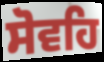
ਸੋਵਹਿ